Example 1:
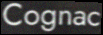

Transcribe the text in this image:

Cognac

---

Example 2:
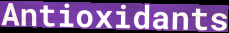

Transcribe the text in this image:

Antioxidants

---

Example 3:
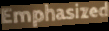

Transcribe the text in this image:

Emphasized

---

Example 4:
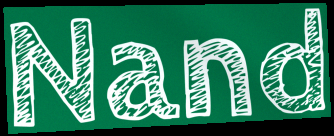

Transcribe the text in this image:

Nand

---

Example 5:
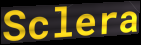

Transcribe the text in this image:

Sclera